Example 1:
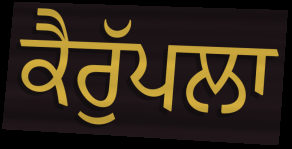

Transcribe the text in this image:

ਕੈਰੁੱਪਲਾ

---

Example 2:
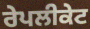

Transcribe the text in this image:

ਰੇਪਲੀਕੇਟ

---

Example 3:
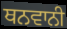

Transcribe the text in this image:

ਥਨਵਾਨੀ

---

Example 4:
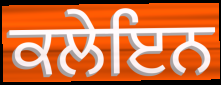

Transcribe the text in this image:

ਕਲੇਇਨ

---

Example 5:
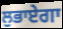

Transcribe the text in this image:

ਲੁਭਾਏਗਾ